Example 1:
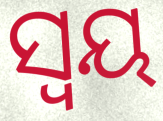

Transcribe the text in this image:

ସ୍ବୟ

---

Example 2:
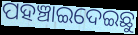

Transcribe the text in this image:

ପହଞ୍ଚାଇଦେଇଛୁ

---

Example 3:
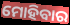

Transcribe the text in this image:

ମୋହିବାର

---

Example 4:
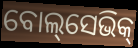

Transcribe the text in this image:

ବୋଲ୍‌ସେଭିକ୍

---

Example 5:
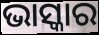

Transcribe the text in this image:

ଭାସ୍କାର